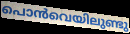
പൊൻവെയിലുണ്ടു